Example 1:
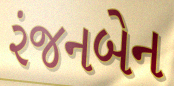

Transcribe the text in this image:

રંજનબેન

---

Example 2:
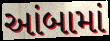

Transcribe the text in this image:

આંબામાં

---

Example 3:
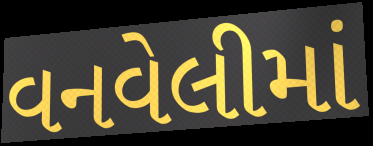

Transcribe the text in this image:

વનવેલીમાં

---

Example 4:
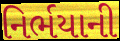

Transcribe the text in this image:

નિર્ભયાની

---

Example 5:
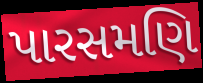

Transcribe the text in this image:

પારસમણિ